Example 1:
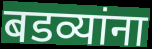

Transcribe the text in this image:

बडव्यांना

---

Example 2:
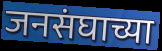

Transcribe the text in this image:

जनसंघाच्या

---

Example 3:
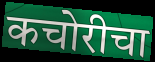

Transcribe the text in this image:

कचोरीचा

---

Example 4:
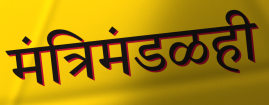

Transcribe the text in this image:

मंत्रिमंडळही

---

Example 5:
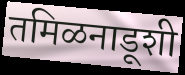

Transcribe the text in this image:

तमिळनाडूशी